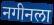
नगीनला